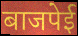
बाजपेई